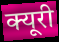
क्यूरी